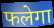
फलेगा